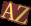
AZ